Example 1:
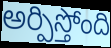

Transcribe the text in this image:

అర్పిస్తోంది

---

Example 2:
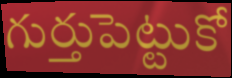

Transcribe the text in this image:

గుర్తుపెట్టుకో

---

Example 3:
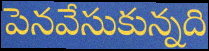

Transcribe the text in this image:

పెనవేసుకున్నది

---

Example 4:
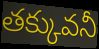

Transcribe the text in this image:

తక్కువనీ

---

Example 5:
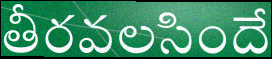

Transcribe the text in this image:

తీరవలసిందే